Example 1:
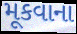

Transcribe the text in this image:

મૂકવાના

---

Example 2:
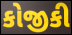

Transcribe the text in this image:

કોજીકી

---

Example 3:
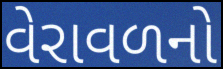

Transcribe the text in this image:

વેરાવળનો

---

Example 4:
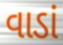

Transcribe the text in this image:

વાડાં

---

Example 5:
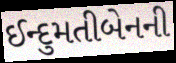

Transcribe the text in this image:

ઈન્દુમતીબેનની